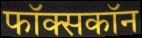
फॉक्सकॉन